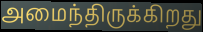
அமைந்திருக்கிறது